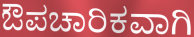
ಔಪಚಾರಿಕವಾಗಿ